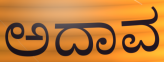
ಅದಾವ